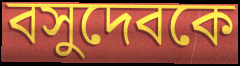
বসুদেবকে